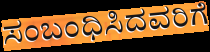
ಸಂಬಂಧಿಸಿದವರಿಗೆ